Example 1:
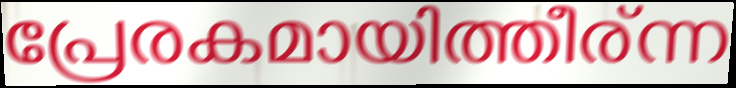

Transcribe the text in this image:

പ്രേരകമായിത്തീര്ന്ന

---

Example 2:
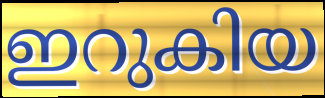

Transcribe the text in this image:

ഇറുകിയ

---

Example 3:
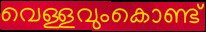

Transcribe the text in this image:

വെള്ളവുംകൊണ്ട്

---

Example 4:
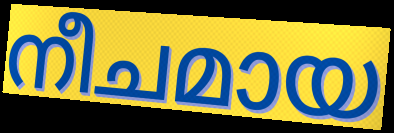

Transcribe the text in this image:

നീചമായ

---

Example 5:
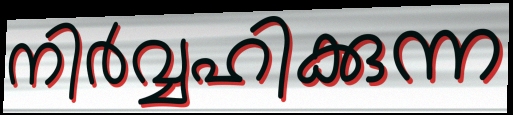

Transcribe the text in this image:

നിർവ്വഹിക്കുന്ന